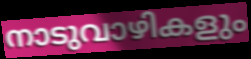
നാടുവാഴികളും